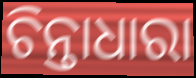
ଚିନ୍ତାଧାରା